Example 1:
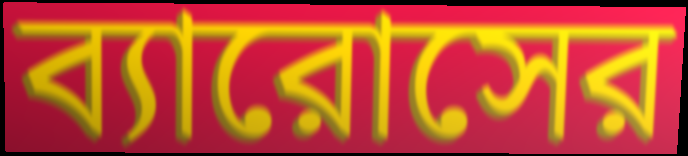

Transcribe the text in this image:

ব্যারোসের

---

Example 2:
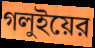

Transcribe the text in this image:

গলুইয়ের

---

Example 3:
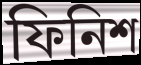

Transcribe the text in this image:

ফিনিশ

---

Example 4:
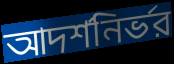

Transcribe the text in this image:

আদর্শনির্ভর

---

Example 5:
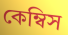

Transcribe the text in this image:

কেম্বিস